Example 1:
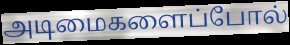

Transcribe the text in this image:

அடிமைகளைப்போல்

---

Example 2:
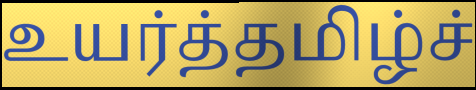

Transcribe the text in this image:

உயர்த்தமிழ்ச்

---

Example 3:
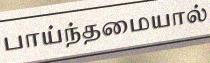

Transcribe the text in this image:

பாய்ந்தமையால்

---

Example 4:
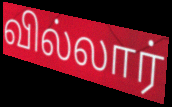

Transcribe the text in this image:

வில்லார்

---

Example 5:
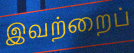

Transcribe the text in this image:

இவற்றைப்